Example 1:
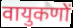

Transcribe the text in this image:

वायुकणों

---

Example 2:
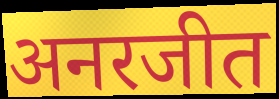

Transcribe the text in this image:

अनरजीत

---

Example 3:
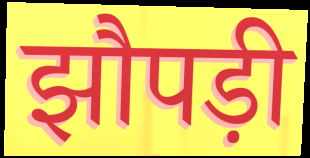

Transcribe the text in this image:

झौपड़ी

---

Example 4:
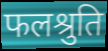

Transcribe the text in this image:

फलश्रुति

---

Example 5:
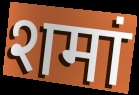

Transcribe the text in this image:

शमां